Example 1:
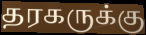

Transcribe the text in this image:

தரகருக்கு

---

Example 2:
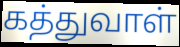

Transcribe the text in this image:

கத்துவாள்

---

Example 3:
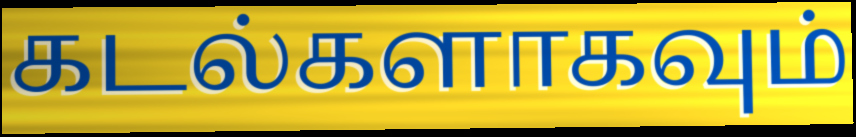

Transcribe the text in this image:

கடல்களாகவும்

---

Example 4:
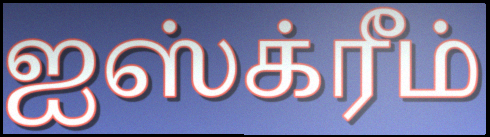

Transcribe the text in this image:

ஐஸ்க்ரீம்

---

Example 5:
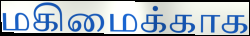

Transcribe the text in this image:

மகிமைக்காக